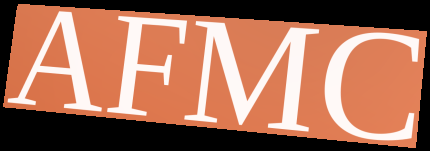
AFMC